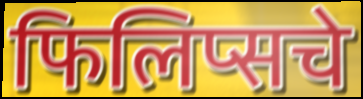
फिलिप्सचे